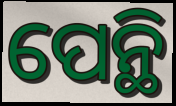
ପେନ୍ଥି